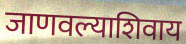
जाणवल्याशिवाय